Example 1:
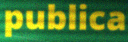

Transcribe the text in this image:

publica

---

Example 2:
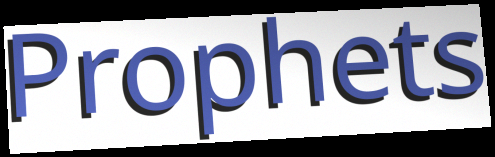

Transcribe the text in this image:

Prophets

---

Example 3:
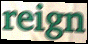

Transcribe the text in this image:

reign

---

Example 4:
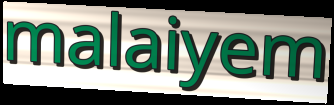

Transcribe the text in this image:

malaiyem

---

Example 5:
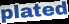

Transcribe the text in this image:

plated